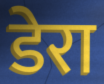
डेरा